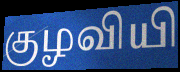
குழவியி